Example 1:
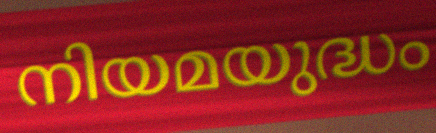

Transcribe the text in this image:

നിയമയുദ്ധം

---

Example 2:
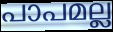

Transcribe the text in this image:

പാപമല്ല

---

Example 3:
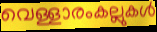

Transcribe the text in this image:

വെള്ളാരംകല്ലുകൾ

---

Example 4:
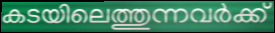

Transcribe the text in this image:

കടയിലെത്തുന്നവർക്ക്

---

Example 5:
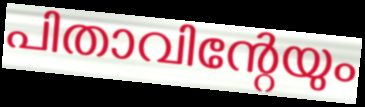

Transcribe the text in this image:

പിതാവിന്റേയും